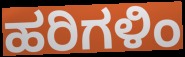
ಹರಿಗಳಿಂ